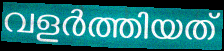
വളർത്തിയത്